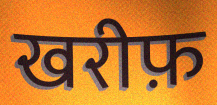
खरीफ़